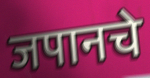
जपानचे